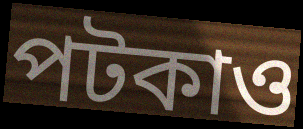
পটকাও